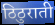
ठिठुराती